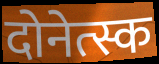
दोनेत्स्क